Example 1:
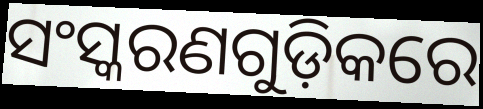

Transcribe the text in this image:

ସଂସ୍କରଣଗୁଡ଼ିକରେ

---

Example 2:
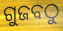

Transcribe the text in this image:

ଗୁଜବଠୁ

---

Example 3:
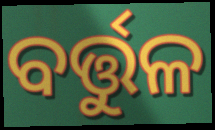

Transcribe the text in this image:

ବର୍ତ୍ତୁଳ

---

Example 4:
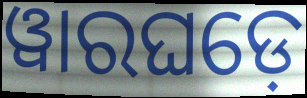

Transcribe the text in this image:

ୱାରଘଡ଼େ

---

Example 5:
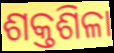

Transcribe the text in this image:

ଶକ୍ତଶିଳା